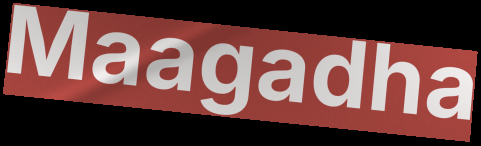
Maagadha